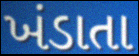
ખંડાતા